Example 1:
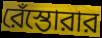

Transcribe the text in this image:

রেঁস্তোরার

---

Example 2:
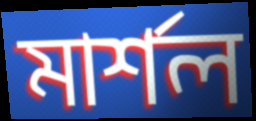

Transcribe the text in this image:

মার্শল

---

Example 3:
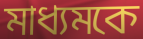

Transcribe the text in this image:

মাধ্যমকে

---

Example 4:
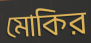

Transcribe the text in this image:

মোকির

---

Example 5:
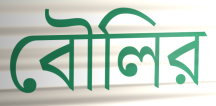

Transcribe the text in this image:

বৌলির